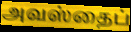
அவஸ்தைப்